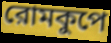
রোমকুপে